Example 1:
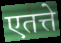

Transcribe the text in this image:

एतत्ते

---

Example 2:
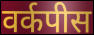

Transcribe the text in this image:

वर्कपीस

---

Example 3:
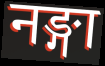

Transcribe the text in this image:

नङ्गा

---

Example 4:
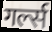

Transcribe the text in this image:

गर्ल्स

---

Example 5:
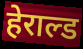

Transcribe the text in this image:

हेराल्ड